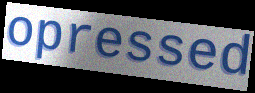
opressed